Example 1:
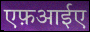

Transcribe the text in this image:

एफ़आईए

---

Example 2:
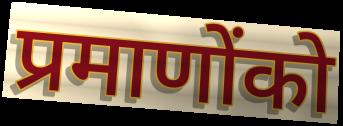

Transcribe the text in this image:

प्रमाणोंको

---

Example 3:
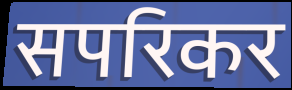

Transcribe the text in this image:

सपरिकर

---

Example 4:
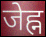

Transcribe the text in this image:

जेह्न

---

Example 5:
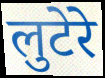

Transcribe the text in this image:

लुटेरे